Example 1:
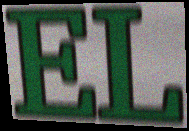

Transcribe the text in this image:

EL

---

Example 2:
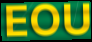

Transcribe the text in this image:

EOU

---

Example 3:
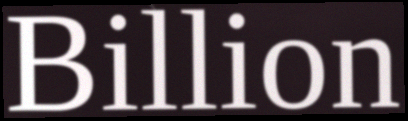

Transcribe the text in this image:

Billion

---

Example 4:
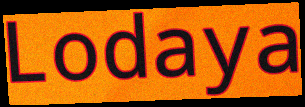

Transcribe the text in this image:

Lodaya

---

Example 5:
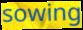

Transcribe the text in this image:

sowing